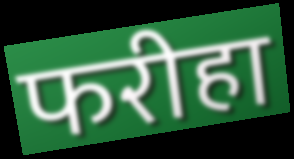
फरीहा